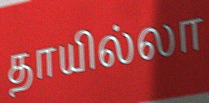
தாயில்லா